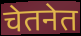
चेतनेत